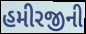
હમીરજીની